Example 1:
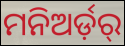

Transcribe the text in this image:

ମନିଅର୍ଡ଼ର୍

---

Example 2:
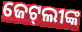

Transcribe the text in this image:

ଜେଟ୍‌ଲୀଙ୍କ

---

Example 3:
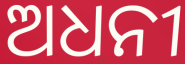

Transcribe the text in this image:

ଅଧନୀ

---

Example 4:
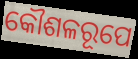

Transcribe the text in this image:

କୌଶଳରୂପେ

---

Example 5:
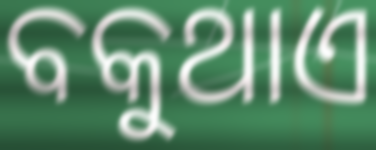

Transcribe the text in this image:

ବକୁଥାଏ